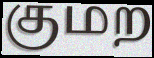
குமற